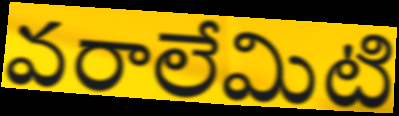
వరాలేమిటి